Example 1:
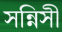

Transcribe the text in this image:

সন্নিসী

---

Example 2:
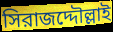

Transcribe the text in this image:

সিরাজদ্দৌল্লাই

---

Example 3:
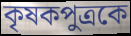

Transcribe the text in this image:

কৃষকপুত্রকে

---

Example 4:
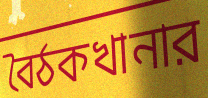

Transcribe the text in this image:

বৈঠকখানার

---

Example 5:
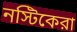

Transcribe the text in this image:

নস্টিকেরা